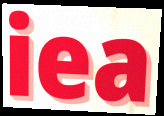
iea